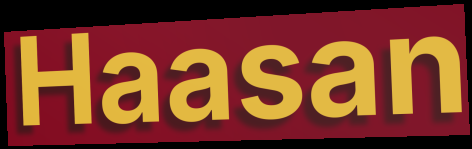
Haasan